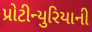
પ્રોટીન્યુરિયાની